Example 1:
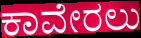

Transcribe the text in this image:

ಕಾವೇರಲು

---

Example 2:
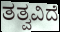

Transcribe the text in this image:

ತತ್ವವಿದೆ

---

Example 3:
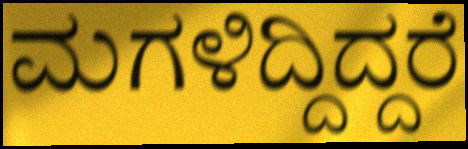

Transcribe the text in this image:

ಮಗಳಿದ್ದಿದ್ದರೆ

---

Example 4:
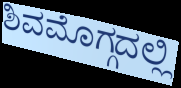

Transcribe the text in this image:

ಶಿವಮೊಗ್ಗದಲ್ಲಿ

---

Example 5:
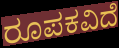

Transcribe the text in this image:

ರೂಪಕವಿದೆ